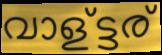
വാള്ട്ടര്